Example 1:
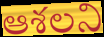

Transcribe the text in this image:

ఆశలని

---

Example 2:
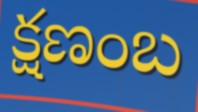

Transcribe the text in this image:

క్షణంబ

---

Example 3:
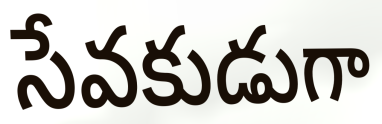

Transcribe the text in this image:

సేవకుడుగా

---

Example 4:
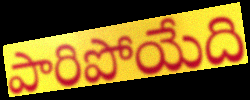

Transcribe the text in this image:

పారిపోయేది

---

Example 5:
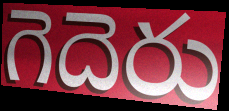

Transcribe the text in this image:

గెదెరు